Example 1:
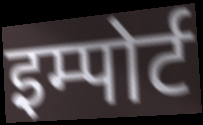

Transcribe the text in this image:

इम्पोर्ट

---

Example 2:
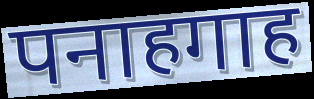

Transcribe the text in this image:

पनाहगाह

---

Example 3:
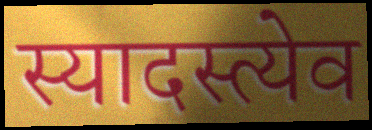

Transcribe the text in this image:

स्यादस्त्येव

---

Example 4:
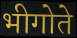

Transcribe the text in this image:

भीगोते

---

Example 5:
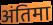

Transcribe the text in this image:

अंतिमा